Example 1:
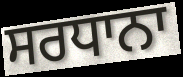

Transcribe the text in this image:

ਸਰਧਾਨਾ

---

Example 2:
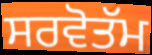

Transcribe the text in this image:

ਸਰਵੋਤੱਮ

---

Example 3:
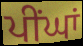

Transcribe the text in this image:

ਪੀਂਘਾਂ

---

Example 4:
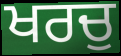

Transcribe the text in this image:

ਖਰਚੁ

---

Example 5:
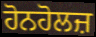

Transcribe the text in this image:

ਹੋਨਹੋਲਜ਼